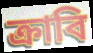
ক্রাবি